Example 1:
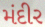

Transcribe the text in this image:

મંદીર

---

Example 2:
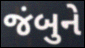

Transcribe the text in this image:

જંબુને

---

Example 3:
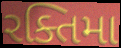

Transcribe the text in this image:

રક્તિમા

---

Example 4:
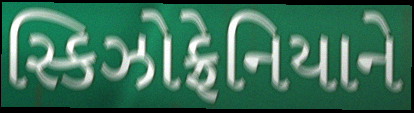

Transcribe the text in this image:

સ્કિઝોફ્રેનિયાને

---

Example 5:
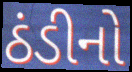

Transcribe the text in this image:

ઠંડીનો